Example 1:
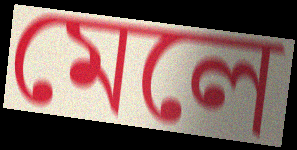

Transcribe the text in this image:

মেলে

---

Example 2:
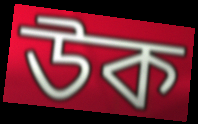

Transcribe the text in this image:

উক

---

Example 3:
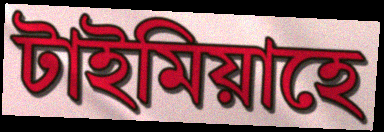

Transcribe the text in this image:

টাইমিয়াহে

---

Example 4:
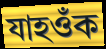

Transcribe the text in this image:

যাহওঁক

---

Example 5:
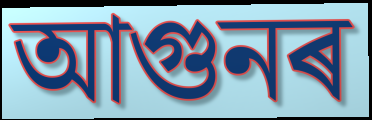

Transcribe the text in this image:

আগুনৰ